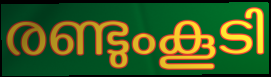
രണ്ടുംകൂടി